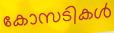
കോസടികൾ